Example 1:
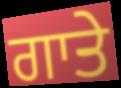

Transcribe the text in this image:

ਗਾਤੇ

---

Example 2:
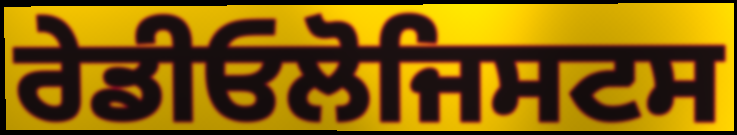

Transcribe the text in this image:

ਰੇਡੀਓਲੋਜਿਸਟਸ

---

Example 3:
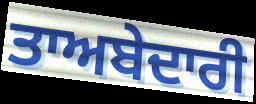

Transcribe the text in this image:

ਤਾਅਬੇਦਾਰੀ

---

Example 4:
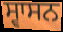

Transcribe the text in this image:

ਸ੍ਵਾਸਨ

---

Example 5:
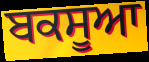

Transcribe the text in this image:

ਬਕਸੂਆ